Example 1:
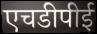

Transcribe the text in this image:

एचडीपीई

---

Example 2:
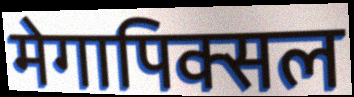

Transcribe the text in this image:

मेगापिक्सल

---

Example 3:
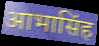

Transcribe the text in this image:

आभासिंह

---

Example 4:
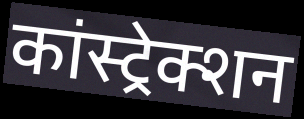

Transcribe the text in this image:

कांस्ट्रेक्शन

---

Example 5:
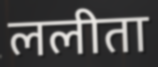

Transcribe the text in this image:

ललीता